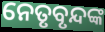
ନେତୃବୃନ୍ଦଙ୍କ